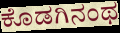
ಕೊಡಗಿನಂಥ